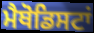
ਮੈਥੋਡਿਸਟਾਂ